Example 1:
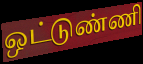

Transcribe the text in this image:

ஒட்டுண்ணி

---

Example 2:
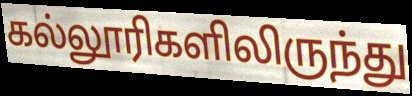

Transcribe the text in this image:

கல்லூரிகளிலிருந்து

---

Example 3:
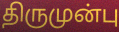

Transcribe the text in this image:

திருமுன்பு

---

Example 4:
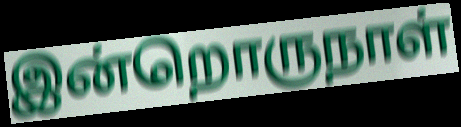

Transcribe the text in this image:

இன்றொருநாள்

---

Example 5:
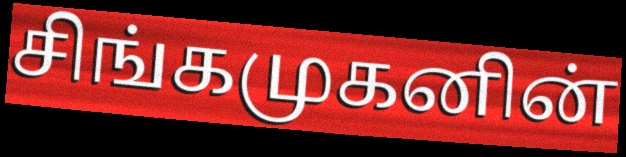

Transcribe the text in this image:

சிங்கமுகனின்